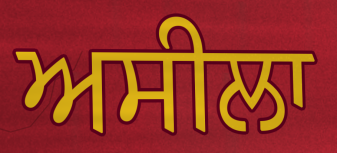
ਅਸੀਲਾ